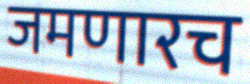
जमणारच